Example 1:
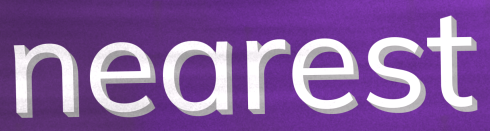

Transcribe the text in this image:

nearest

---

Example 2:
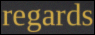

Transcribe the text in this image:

regards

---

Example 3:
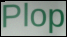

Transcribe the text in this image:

Plop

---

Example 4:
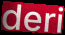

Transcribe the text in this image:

deri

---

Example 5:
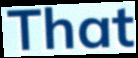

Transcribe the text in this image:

That